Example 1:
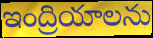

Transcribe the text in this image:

ఇంద్రియాలను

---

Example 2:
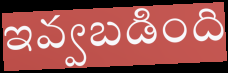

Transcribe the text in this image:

ఇవ్వబడింది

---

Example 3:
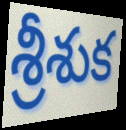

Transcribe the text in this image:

శ్రీశుక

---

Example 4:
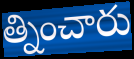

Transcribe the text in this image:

త్నించారు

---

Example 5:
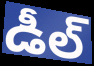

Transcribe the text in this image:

డీల్